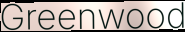
Greenwood